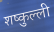
शष्कुल्ली